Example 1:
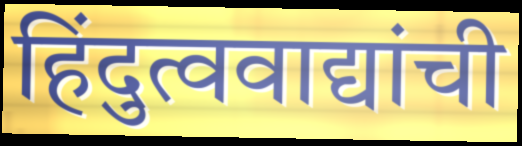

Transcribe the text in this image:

हिंदुत्ववाद्यांची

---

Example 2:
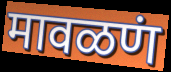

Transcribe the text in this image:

मावळणं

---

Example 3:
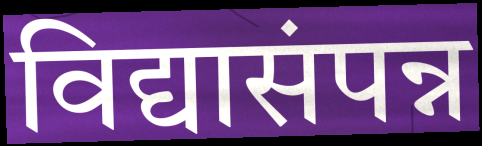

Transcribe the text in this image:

विद्यासंपन्न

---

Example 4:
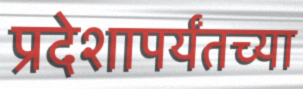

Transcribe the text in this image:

प्रदेशापर्यंतच्या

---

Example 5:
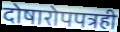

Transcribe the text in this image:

दोषारोपपत्रही